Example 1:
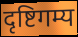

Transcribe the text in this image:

दृष्टिगम्य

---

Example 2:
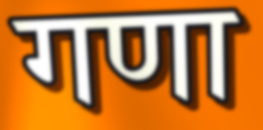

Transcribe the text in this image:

गणा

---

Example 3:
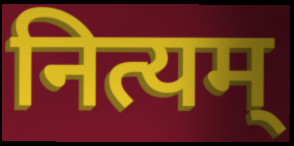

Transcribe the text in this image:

नित्यम्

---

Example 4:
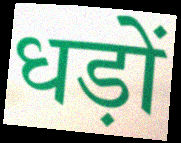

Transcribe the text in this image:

धड़ों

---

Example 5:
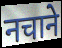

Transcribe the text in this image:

नचाने